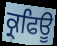
ਕ੍ਰਫਿਊ